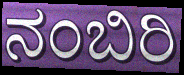
ನಂಬಿರಿ